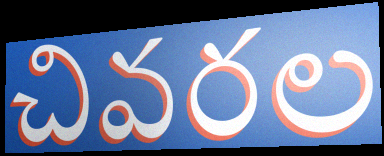
చివరల